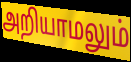
அறியாமலும்